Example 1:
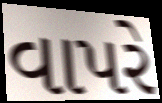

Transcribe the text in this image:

વાપરે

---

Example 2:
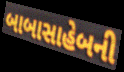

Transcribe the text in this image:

બાબાસાહેબની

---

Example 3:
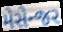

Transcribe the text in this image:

મેસેન્જર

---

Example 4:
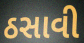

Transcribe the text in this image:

ઠસાવી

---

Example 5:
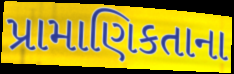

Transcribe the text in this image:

પ્રામાણિકતાના